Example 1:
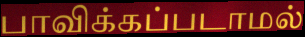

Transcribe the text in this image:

பாவிக்கப்படாமல்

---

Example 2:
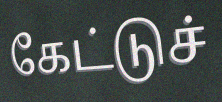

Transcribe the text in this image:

கேட்டுச்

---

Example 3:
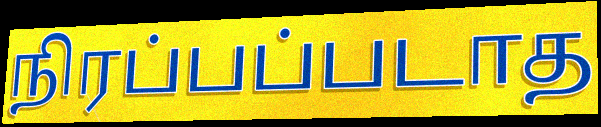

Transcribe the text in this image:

நிரப்பப்படாத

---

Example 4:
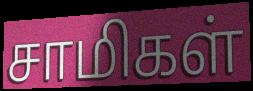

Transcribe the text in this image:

சாமிகள்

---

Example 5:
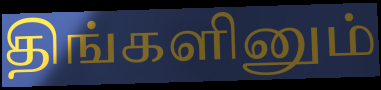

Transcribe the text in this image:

திங்களினும்